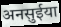
अनसुईया